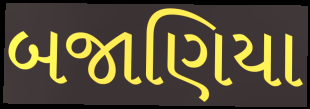
બજાણિયા